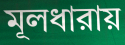
মূলধারায়